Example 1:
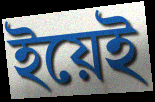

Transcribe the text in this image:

ইয়েই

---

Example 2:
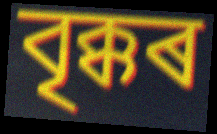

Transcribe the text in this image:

বৃক্কৰ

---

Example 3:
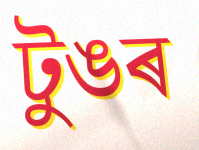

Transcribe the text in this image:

টুঙৰ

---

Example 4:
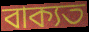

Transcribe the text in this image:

বাক্যত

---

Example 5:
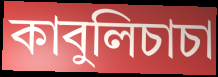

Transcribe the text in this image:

কাবুলিচাচা